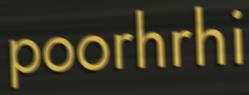
poorhrhi